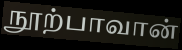
நூற்பாவான்